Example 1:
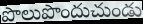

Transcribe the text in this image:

పొలుపొందుచుండు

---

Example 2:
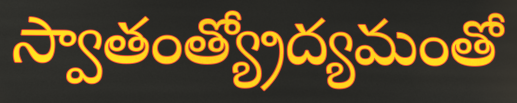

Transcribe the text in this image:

స్వాతంత్య్రోద్యమంతో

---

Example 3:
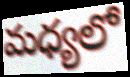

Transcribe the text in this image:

మధ్యలో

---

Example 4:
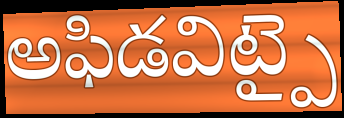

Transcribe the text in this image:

అఫిడవిట్పై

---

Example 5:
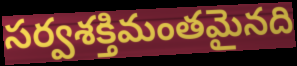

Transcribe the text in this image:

సర్వశక్తిమంతమైనది